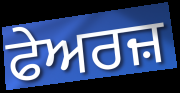
ਫੇਅਰਜ਼